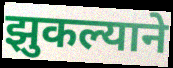
झुकल्याने